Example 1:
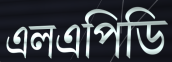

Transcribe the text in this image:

এলএপিডি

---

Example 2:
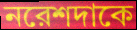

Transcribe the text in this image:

নরেশদাকে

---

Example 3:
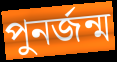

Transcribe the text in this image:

পুনর্জন্ম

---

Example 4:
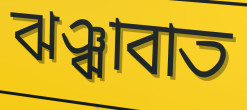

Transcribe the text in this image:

ঝঞ্ঝাবাত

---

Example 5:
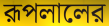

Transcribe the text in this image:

রূপলালের